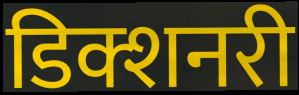
डिक्‍शनरी